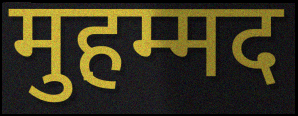
मुह़म्मद